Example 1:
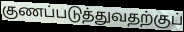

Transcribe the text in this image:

குணப்படுத்துவதற்குப்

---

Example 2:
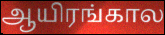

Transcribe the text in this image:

ஆயிரங்கால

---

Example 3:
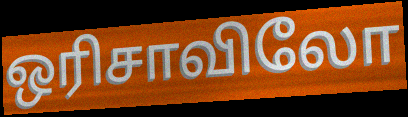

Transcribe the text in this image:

ஒரிசாவிலோ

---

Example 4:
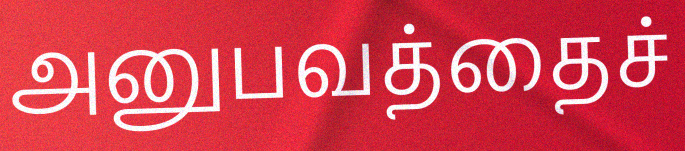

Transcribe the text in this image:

அனுபவத்தைச்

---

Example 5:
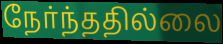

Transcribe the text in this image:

நேர்ந்ததில்லை